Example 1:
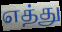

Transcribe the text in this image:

எத்து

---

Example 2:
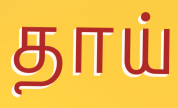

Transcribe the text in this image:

தாய்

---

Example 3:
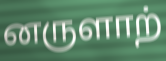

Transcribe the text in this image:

னருளாற்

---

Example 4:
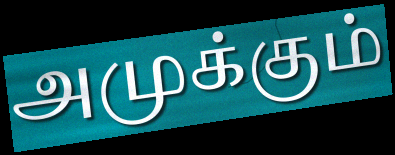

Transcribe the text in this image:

அமுக்கும்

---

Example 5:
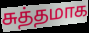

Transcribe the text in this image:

சுத்தமாக